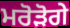
ਮਰੋੜੋਗੇ